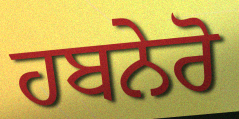
ਹਬਨੇਰੋ